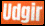
Udgir